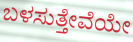
ಬಳಸುತ್ತೇವೆಯೇ